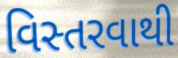
વિસ્તરવાથી